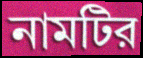
নামটির